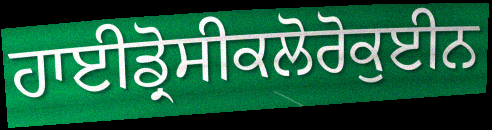
ਹਾਈਡ੍ਰੋਸੀਕਲੋਰੋਕੁਈਨ